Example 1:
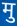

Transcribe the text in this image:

मु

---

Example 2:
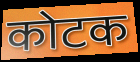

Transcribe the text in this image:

कोटक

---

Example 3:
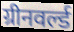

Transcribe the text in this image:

ग्रीनवर्ल्ड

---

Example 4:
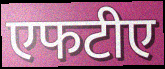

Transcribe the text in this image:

एफटीए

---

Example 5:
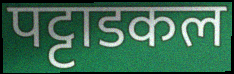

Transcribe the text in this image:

पट्टाडकल